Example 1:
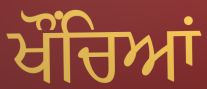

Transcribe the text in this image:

ਖੌਂਚਿਆਂ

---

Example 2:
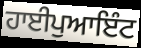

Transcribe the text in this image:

ਹਾਈਪੁਆਇੰਟ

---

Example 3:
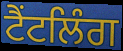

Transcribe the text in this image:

ਟੈਂਟਲਿੰਗ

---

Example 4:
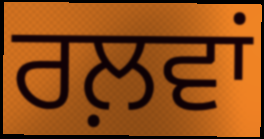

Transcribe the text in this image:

ਰਲ਼ਵਾਂ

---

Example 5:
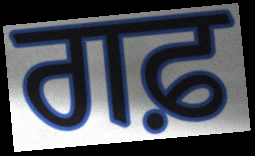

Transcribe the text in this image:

ਗਫ਼